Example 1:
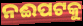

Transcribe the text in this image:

ନଈପଟକୁ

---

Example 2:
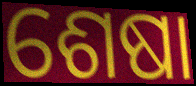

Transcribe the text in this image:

ଶେଷା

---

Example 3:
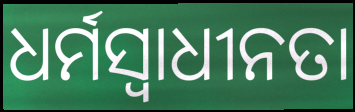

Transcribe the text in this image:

ଧର୍ମସ୍ୱାଧୀନତା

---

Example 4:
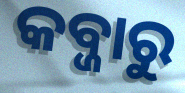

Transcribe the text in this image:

କବ୍ଜାରୁ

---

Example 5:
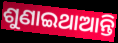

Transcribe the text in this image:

ଶୁଣାଇଥାଆନ୍ତି